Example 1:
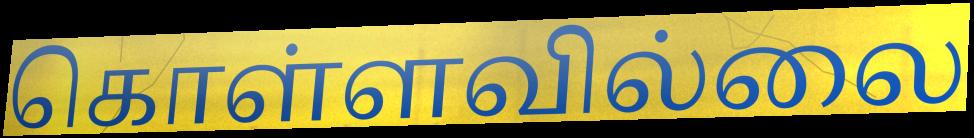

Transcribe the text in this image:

கொள்ளவில்லை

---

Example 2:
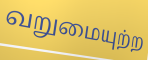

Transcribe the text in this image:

வறுமையுற்ற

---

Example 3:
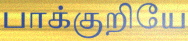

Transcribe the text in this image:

பாக்குறியே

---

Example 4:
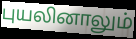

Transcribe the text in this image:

புயலினாலும்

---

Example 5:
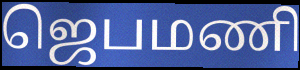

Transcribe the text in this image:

ஜெபமணி